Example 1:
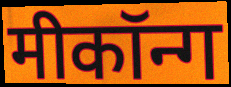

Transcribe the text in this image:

मीकॉन्ग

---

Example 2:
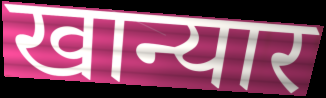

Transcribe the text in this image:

खान्यार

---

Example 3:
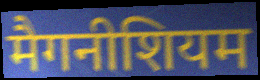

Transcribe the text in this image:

मैगनीशियम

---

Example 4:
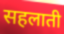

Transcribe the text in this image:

सहलाती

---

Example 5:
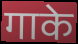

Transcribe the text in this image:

गाके